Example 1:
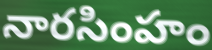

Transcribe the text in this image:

నారసింహం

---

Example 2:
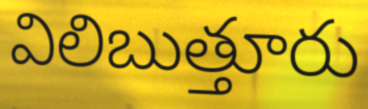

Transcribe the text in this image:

విలిబుత్తూరు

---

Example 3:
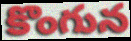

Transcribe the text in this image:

కొంగున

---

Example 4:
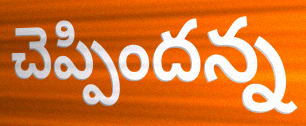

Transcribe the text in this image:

చెప్పిందన్న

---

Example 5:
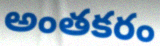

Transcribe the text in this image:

అంతకరం